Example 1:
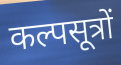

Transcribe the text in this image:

कल्पसूत्रों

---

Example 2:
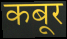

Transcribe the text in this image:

कबूर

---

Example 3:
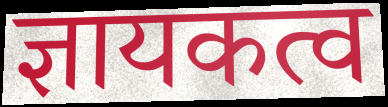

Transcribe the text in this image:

ज्ञायकत्व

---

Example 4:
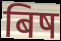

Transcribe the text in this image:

बिष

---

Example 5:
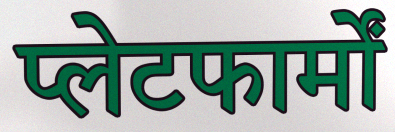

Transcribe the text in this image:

प्लेटफार्मों